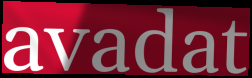
avadat